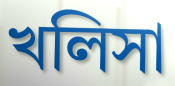
খলিসা